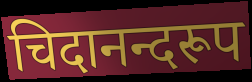
चिदानन्दरूप